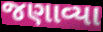
જણાવ્યા